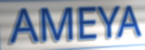
AMEYA